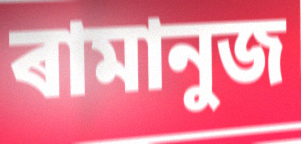
ৰামানুজ